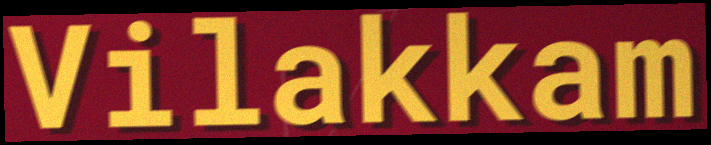
Vilakkam